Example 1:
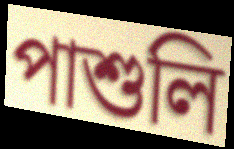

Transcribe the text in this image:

পাশুলি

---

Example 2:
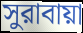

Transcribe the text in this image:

সুরাবায়া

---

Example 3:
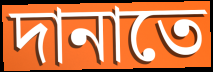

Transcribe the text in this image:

দানাতে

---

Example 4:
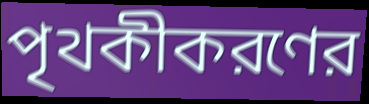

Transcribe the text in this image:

পৃথকীকরণের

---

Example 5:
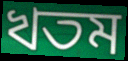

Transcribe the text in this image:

খতম